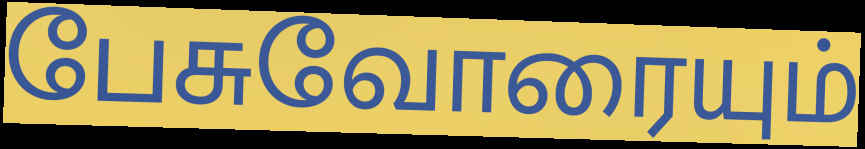
பேசுவோரையும்